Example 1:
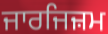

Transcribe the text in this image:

ਜਾਰਜਿਜ਼ਮ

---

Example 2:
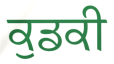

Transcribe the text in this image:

ਕੁਡਕੀ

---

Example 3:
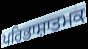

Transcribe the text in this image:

ਪਰਿਭਾਸ਼ਾਤਮਕ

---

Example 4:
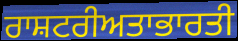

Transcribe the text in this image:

ਰਾਸ਼ਟਰੀਅਤਾਭਾਰਤੀ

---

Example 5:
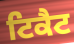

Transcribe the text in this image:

ਟਿਕੈਟ